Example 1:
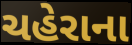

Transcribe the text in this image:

ચહેરાના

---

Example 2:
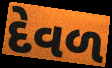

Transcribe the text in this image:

દેવળ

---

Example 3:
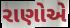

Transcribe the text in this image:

રાણોએ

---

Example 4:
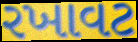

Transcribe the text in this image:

રખાવટ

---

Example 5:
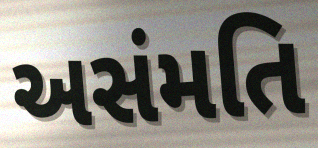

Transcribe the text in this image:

અસંમતિ